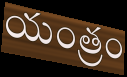
యంత్రం